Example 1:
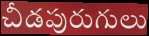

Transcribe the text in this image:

చీడపురుగులు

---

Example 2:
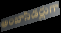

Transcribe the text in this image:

అంబాసిడర్లుగా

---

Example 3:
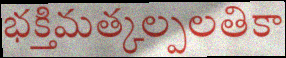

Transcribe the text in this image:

భక్తిమత్కల్పలతికా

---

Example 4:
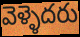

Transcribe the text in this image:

వెళ్ళెదరు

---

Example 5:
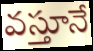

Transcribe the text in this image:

వస్తూనే